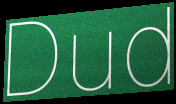
Dud